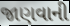
જાણવાની